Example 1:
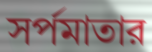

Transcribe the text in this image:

সর্পমাতার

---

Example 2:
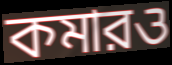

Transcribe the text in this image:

কমারও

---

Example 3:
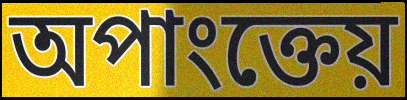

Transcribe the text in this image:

অপাংক্তেয়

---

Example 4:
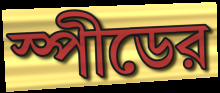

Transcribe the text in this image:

স্পীডের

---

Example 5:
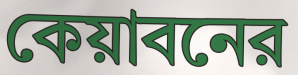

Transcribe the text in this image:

কেয়াবনের